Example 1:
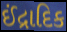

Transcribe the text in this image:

ઈંદ્રાદિક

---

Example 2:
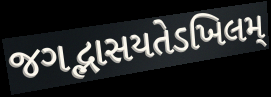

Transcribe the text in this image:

જગદ્ભાસયતેઽખિલમ્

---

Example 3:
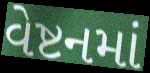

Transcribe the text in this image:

વેષ્ટનમાં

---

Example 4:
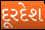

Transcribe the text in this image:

દૂરદેશ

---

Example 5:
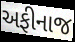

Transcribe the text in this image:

અફીનાજ